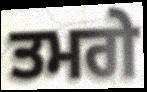
ਤਮਗੇ